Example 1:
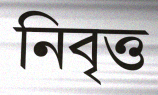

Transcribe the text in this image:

নিবৃত্ত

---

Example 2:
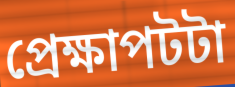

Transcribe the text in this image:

প্রেক্ষাপটটা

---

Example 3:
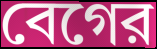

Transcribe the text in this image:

বেগের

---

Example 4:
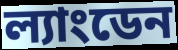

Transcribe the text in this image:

ল্যাংডেন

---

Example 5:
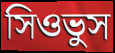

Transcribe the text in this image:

সিওভুস